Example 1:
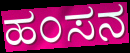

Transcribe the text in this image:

ಹಂಸನ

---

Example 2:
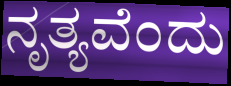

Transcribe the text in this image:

ನೃತ್ಯವೆಂದು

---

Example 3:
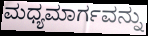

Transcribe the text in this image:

ಮಧ್ಯಮಾರ್ಗವನ್ನು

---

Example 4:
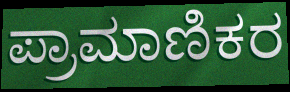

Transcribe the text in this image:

ಪ್ರಾಮಾಣಿಕರ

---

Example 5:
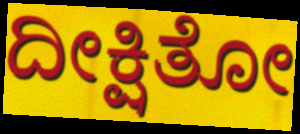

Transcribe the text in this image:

ದೀಕ್ಷಿತೋ